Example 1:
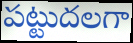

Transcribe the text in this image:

పట్టుదలగా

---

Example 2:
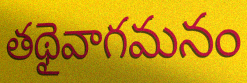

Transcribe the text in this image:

తథైవాగమనం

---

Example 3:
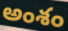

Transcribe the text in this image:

అంశం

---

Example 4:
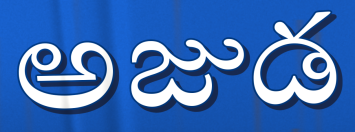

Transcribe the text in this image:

అజుడ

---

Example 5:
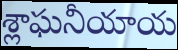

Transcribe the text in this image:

శ్లాఘనీయాయ